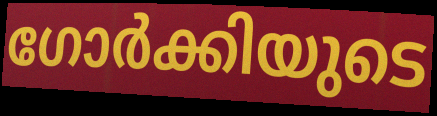
ഗോർക്കിയുടെ